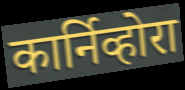
कार्निव्होरा